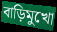
বাড়িমুখো